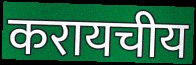
करायचीय